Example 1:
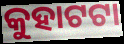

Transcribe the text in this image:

କୁହାଟଟା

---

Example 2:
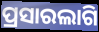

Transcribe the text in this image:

ପ୍ରସାରଲାଗି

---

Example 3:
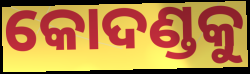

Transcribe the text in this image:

କୋଦଣ୍ଡକୁ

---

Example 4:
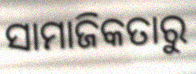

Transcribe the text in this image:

ସାମାଜିକତାରୁ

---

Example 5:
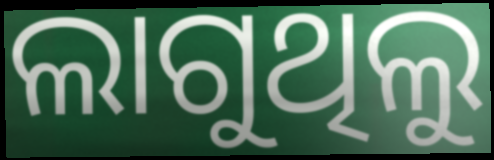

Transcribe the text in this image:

ଲାଗୁଥିଲୁ